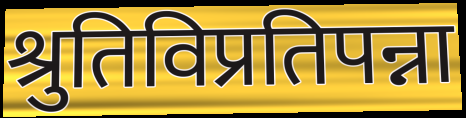
श्रुतिविप्रतिपन्ना